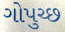
ગોપુચ્છ